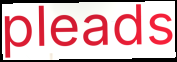
pleads